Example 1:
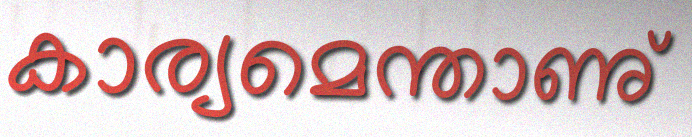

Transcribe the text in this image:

കാര്യമെന്താണു്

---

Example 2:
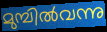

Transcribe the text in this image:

മുമ്പിൽവന്നു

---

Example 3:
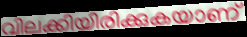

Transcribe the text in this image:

വിലക്കിയിരിക്കുകയാണ്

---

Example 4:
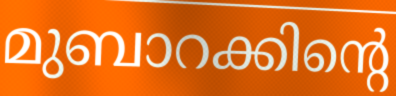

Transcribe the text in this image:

മുബാറക്കിന്റെ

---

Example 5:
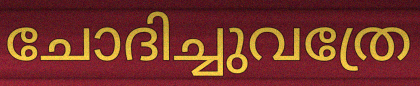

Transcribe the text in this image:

ചോദിച്ചുവത്രേ